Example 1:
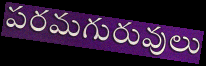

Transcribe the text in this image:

పరమగురువులు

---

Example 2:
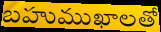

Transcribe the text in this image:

బహుముఖాలతో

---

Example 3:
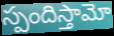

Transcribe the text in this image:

స్పందిస్తామో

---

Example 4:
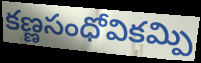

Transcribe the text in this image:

కణ్ణసంధోవికమ్పి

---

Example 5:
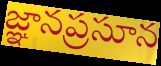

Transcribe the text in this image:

జ్ఞానప్రసూన